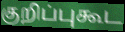
குறிப்புகூட